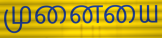
முனையை